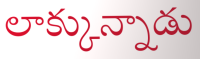
లాక్కున్నాడు